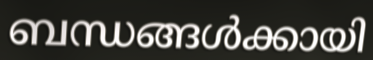
ബന്ധങ്ങൾക്കായി